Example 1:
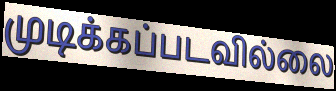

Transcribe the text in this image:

முடிக்கப்படவில்லை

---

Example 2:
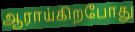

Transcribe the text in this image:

ஆராய்கிறபோது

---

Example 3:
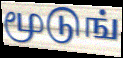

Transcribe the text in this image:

மூடுங்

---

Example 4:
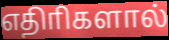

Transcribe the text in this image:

எதிரிகளால்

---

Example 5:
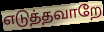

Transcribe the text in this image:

எடுத்தவாறே